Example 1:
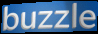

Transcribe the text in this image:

buzzle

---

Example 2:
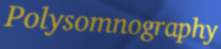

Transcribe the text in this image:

Polysomnography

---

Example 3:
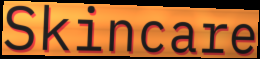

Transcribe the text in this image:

Skincare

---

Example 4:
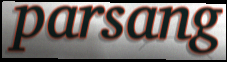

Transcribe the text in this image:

parsang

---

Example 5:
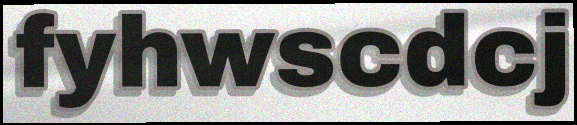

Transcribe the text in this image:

fyhwscdcj